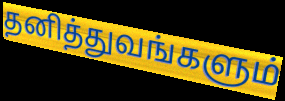
தனித்துவங்களும்